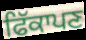
ਫਿੱਕਾਪਣ